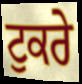
ਟੁਕਰੇ